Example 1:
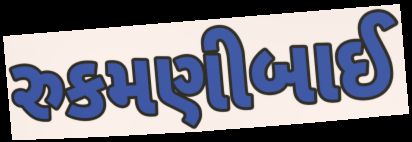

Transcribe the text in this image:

રુકમણીબાઈ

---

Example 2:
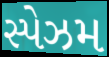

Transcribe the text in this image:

સ્પેઝમ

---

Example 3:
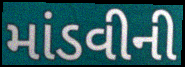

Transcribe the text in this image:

માંડવીની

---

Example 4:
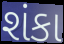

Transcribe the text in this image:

શંકા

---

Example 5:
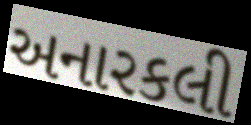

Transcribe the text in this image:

અનારકલી